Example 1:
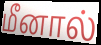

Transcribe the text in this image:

மீனால்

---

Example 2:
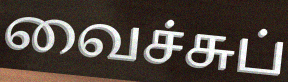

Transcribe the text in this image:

வைச்சுப்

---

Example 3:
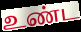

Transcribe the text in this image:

உண்ட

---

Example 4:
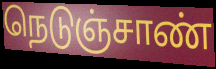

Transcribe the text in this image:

நெடுஞ்சாண்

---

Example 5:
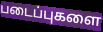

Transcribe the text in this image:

படைப்புகளை